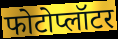
फोटोप्लॉटर